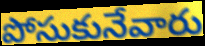
పోసుకునేవారు